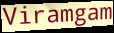
Viramgam